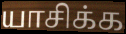
யாசிக்க